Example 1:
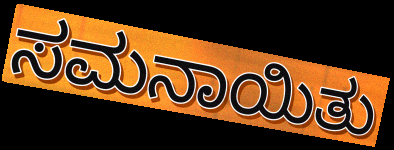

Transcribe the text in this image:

ಸಮನಾಯಿತು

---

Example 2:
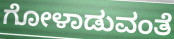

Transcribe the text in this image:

ಗೋಳಾಡುವಂತೆ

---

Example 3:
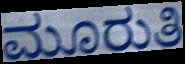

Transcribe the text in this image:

ಮೂರುತಿ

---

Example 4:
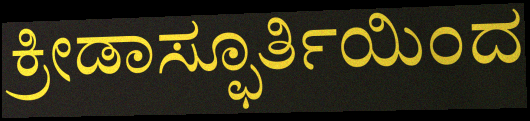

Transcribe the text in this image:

ಕ್ರೀಡಾಸ್ಫೂರ್ತಿಯಿಂದ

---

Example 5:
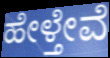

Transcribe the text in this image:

ಹೇಳ್ತೇವೆ